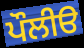
ਪੌਲੀੳ